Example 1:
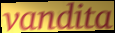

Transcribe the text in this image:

vandita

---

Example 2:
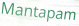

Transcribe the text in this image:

Mantapam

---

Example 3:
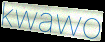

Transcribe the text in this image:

kwawo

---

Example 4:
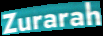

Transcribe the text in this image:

Zurarah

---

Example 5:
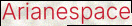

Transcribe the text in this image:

Arianespace